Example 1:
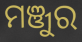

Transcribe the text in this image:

ମଞ୍ଜୁର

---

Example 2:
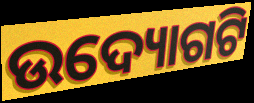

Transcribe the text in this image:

ଉଦ୍ୟୋଗଟି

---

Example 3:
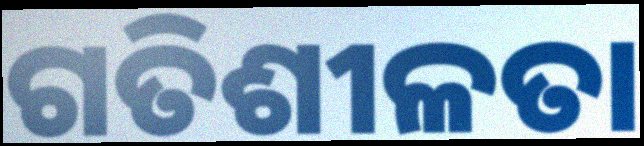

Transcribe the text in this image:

ଗତିଶୀଳତା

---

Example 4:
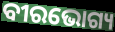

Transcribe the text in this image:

ବୀରଭୋଗ୍ୟ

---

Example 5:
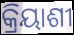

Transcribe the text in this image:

କ୍ରିୟାଶୀ